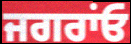
ਜਗਰਾਂਓ